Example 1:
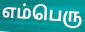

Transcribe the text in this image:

எம்பெரு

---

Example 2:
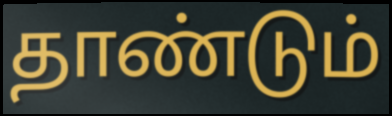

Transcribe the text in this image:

தாண்டும்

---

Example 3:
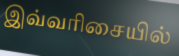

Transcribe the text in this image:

இவ்வரிசையில்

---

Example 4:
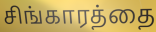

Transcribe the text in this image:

சிங்காரத்தை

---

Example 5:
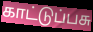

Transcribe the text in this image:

காட்டுப்பசு